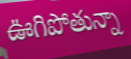
ఊగిపోతున్నా